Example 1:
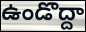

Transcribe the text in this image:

ఉండొద్దా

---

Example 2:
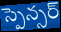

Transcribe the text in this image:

స్పెన్సర్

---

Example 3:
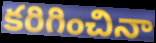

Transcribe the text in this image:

కరిగించినా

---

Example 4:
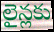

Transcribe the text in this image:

లైన్లకు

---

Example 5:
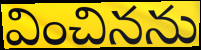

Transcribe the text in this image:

వించినను